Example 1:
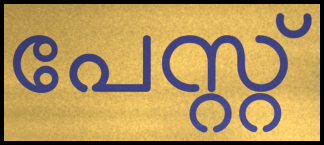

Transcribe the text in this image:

പേസ്റ്റ്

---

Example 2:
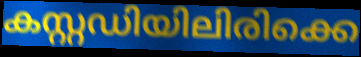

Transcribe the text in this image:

കസ്റ്റഡിയിലിരിക്കെ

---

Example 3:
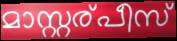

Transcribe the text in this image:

മാസ്റ്റര്പീസ്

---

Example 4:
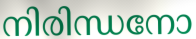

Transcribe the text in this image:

നിരിന്ധനോ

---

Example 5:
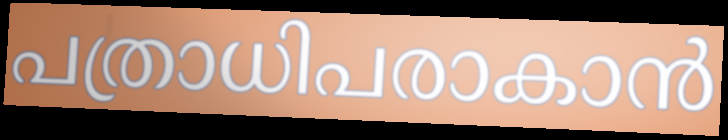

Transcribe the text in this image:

പത്രാധിപരാകാൻ